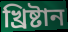
খ্রিষ্টান